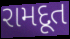
રામદૂત